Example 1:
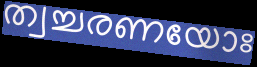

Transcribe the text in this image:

ത്വച്ചരണയോഃ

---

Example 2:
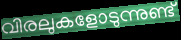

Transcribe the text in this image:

വിരലുകളോടുന്നുണ്ട്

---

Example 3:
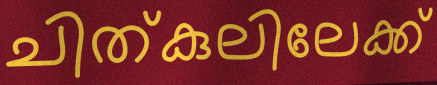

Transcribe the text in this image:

ചിത്കുലിലേക്ക്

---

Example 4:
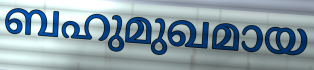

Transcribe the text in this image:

ബഹുമുഖമായ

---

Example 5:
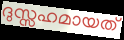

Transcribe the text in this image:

ദുസ്സഹമായത്